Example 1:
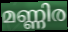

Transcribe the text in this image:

മണ്ണിര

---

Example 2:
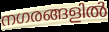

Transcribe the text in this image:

നഗരങ്ങളിൽ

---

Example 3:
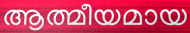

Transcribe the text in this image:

ആത്മീയമായ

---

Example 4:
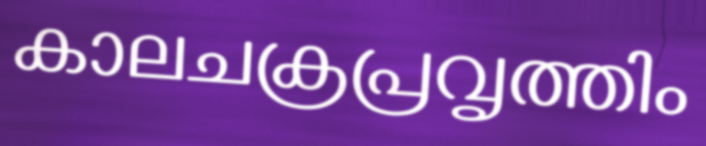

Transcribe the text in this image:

കാലചക്രപ്രവൃത്തിം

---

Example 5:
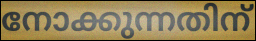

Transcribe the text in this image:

നോക്കുന്നതിന്